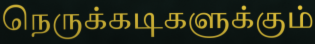
நெருக்கடிகளுக்கும்